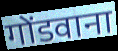
गोंडवाना